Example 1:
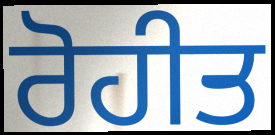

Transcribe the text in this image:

ਰੋਹੀਤ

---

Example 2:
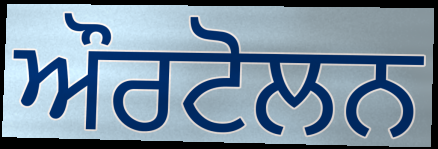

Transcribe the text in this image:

ਔਰਟੋਲਨ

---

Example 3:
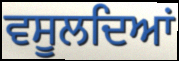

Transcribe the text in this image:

ਵਸੂਲਦਿਆਂ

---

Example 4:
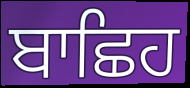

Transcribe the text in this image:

ਬਾਛਿਹ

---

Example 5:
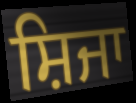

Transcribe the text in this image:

ਸ਼ਿਜਾ